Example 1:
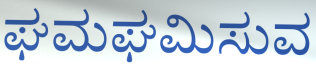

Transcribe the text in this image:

ಘಮಘಮಿಸುವ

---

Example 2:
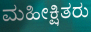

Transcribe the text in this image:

ಮಹೀಕ್ಷಿತರು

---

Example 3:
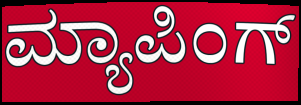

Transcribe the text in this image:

ಮ್ಯಾಪಿಂಗ್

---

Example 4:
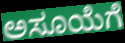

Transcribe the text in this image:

ಅಸೂಯೆಗೆ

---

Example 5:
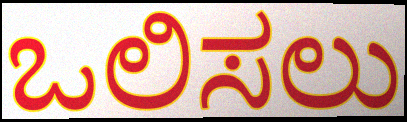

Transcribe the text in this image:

ಒಲಿಸಲು